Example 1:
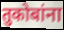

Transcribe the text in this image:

तुकोबांना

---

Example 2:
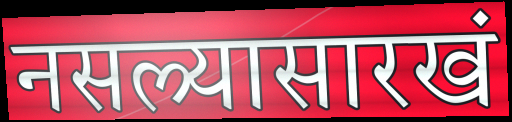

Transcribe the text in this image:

नसल्यासारखं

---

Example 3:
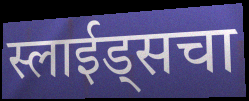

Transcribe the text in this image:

स्लाईड्सचा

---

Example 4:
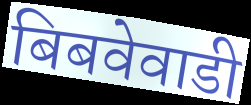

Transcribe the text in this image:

बिबवेवाडी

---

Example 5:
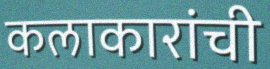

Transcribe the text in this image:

कलाकारांची